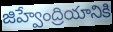
జిహ్వేంద్రియానికి